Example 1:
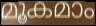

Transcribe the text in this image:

മൂകമാം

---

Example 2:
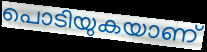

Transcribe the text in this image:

പൊടിയുകയാണ്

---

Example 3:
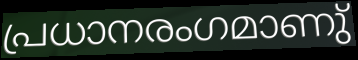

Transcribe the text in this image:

പ്രധാനരംഗമാണു്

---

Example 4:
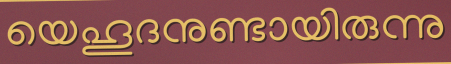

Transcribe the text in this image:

യെഹൂദനുണ്ടായിരുന്നു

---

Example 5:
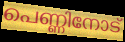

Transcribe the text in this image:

പെണ്ണിനോട്